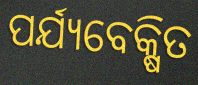
ପର୍ଯ୍ୟବେକ୍ଷିତ